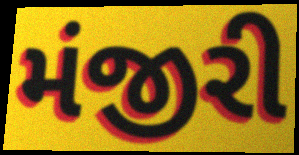
મંજીરી